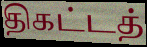
திகட்டத்